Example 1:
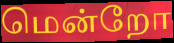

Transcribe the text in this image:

மென்றோ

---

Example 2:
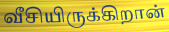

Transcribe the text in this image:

வீசியிருக்கிறான்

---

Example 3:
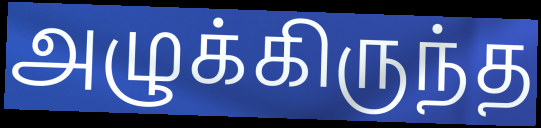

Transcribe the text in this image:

அழுக்கிருந்த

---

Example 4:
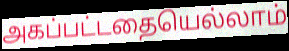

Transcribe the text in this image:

அகப்பட்டதையெல்லாம்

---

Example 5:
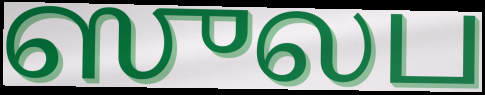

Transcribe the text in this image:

ஸுலப